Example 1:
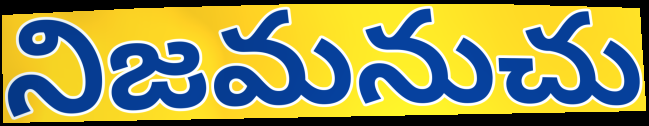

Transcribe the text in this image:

నిజమనుచు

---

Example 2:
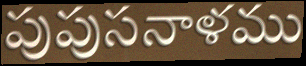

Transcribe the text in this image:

పుపుసనాళము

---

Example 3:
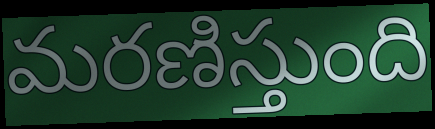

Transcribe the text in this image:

మరణిస్తుంది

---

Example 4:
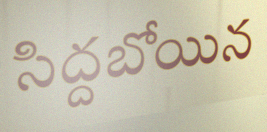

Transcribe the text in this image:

సిద్దబోయిన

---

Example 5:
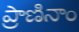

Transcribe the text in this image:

ప్రాణినాం